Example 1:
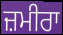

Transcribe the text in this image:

ਜ਼ਮੀਰਾ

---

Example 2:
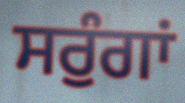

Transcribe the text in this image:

ਸਰੁੰਗਾਂ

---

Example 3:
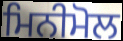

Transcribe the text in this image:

ਮਿਨੀਮੋਲ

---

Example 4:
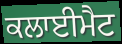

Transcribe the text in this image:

ਕਲਾਈਮੈਟ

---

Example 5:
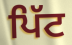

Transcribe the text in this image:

ਪਿੱਟ